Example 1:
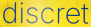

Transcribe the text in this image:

discret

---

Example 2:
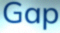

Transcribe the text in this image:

Gap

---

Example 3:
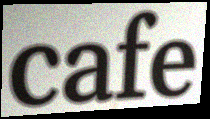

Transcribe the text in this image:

cafe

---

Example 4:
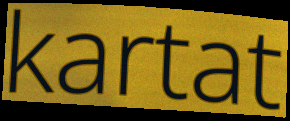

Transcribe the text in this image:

kartat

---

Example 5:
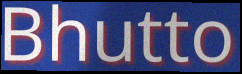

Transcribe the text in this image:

Bhutto